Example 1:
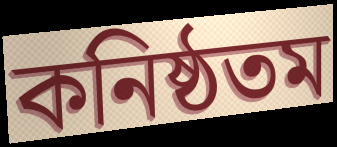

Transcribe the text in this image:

কনিষ্ঠতম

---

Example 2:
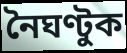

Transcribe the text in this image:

নৈঘণ্টুক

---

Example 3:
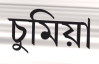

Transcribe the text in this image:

চুমিয়া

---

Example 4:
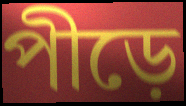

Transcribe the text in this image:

পীড়ে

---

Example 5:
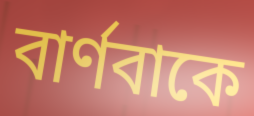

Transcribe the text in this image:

বার্ণবাকে